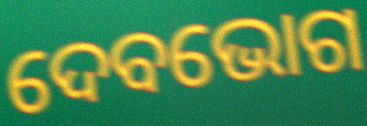
ଦେବଭୋଗ